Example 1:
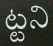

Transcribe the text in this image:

ట్టని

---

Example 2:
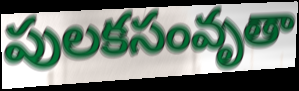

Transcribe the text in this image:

పులకసంవృతా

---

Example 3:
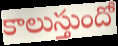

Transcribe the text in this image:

కాలుస్తుందో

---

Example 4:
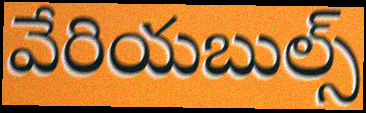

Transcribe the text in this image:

వేరియబుల్స్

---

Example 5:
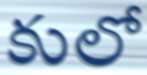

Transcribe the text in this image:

కులో